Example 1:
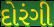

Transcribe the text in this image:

દોરંગી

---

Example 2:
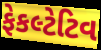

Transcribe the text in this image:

ફેકલ્ટેટિવ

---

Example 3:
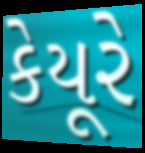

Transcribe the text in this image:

કેયૂરે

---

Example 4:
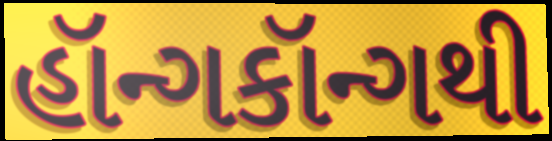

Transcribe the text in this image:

હૉન્ગકૉન્ગથી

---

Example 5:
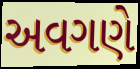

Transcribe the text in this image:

અવગણે